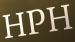
HPH